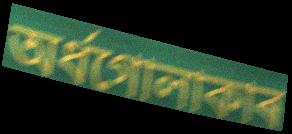
অৰ্ধগোলাকাৰ